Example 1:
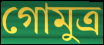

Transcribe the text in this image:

গোমুত্ৰ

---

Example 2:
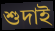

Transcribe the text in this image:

শুদাই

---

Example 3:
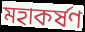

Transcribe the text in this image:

মহাকৰ্ষণ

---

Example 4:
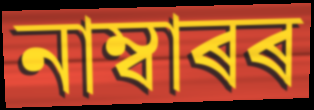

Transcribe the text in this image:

নাম্বাৰৰ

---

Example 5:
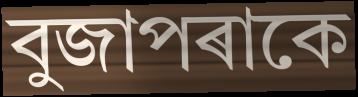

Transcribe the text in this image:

বুজাপৰাকে